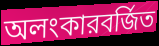
অলংকারবর্জিত